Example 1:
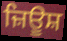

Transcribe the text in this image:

ਜ਼ਿਊਸ਼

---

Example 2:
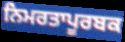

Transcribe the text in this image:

ਨਿਮਰਤਾਪੂਰਬਕ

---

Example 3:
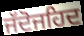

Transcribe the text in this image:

ਜੱਦੋਜਹਿਦ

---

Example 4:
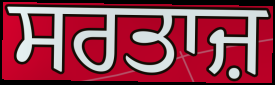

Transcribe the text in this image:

ਸਰਤਾਜ਼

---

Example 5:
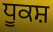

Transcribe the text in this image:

ਧੂਕਸ਼